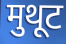
मुथूट